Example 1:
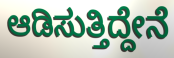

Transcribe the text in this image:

ಆಡಿಸುತ್ತಿದ್ದೇನೆ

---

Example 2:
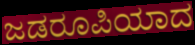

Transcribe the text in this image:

ಜಡರೂಪಿಯಾದ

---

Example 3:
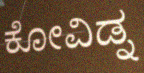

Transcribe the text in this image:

ಕೋವಿಡ್ನ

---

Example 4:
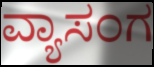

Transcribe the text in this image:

ವ್ಯಾಸಂಗ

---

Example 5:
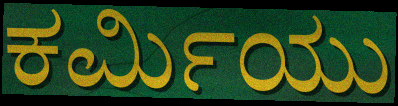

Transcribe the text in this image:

ಕರ್ಮಿಯು